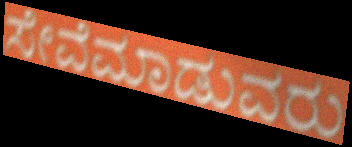
ಸೇವೆಮಾಡುವರು